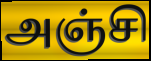
அஞ்சி